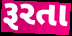
રૂરતા